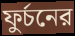
ফুর্চনের